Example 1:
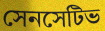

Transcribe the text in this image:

সেনসেটিভ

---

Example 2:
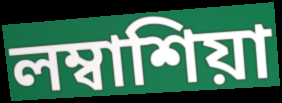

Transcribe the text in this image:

লম্বাশিয়া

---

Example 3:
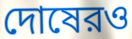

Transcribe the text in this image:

দোষেরও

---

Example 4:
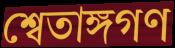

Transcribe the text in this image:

শ্বেতাঙ্গগণ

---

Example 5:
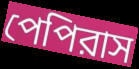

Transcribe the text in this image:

পেপিরাস